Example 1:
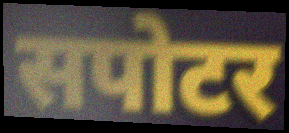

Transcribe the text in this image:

सपोटर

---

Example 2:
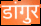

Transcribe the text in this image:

डांगुर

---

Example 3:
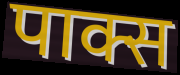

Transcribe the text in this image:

पाक्स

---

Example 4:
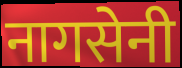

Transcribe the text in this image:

नागसेनी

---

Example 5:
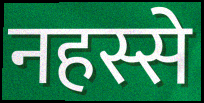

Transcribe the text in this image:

नहस्से